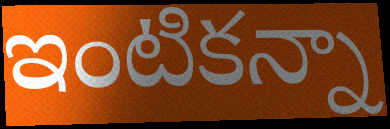
ఇంటికన్నా